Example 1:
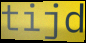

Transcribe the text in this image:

tijd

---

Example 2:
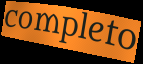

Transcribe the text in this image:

completo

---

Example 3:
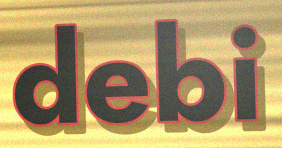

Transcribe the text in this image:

debi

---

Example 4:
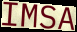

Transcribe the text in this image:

IMSA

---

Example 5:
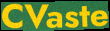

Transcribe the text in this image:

CVaste